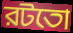
রটতো